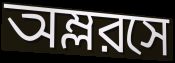
অম্লরসে